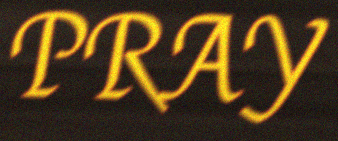
PRAY